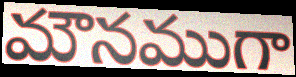
మౌనముగా